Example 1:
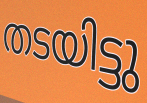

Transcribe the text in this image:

തടയിട്ടു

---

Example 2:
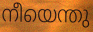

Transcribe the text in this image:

നീയെന്തു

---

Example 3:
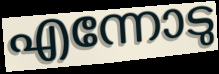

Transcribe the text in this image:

എന്നോടു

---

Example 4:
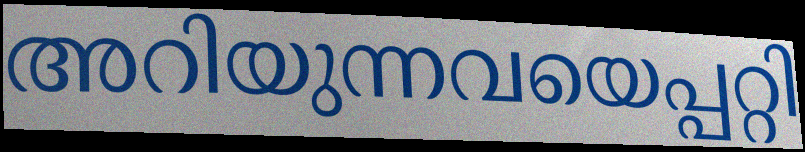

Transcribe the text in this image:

അറിയുന്നവയെപ്പറ്റി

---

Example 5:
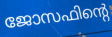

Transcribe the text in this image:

ജോസഫിന്റെ